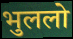
भुललो